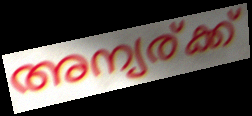
അന്യര്ക്ക്